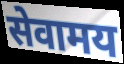
सेवामय